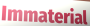
Immaterial